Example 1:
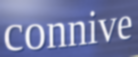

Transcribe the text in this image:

connive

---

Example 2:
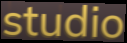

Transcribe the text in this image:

studio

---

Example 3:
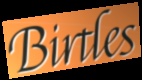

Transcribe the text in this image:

Birtles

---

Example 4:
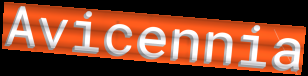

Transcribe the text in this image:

Avicennia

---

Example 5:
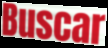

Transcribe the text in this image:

Buscar